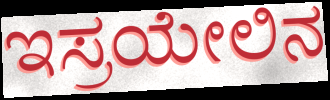
ಇಸ್ರಯೇಲಿನ